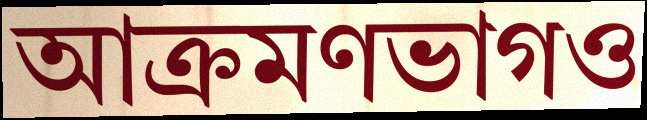
আক্রমণভাগও